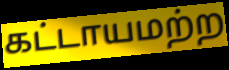
கட்டாயமற்ற